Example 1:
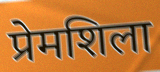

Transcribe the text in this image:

प्रेमशिला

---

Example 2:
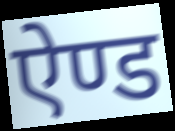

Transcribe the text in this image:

ऐण्ड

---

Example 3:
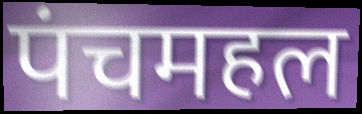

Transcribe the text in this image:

पंचमहल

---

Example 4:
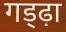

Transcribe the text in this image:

गड्ढ़ा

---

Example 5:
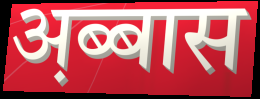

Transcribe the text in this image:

अ़ब्बास